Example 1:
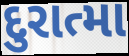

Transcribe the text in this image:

દુરાત્મા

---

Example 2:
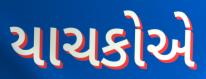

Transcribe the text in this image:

યાચકોએ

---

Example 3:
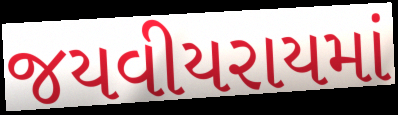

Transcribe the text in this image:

જયવીયરાયમાં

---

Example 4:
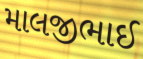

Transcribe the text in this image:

માલજીભાઈ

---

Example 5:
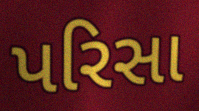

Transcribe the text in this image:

પરિસા